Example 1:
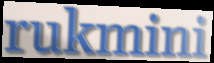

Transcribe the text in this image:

rukmini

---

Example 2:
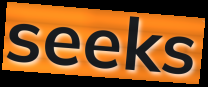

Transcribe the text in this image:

seeks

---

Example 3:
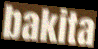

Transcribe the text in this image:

bakita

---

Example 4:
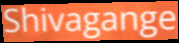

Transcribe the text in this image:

Shivagange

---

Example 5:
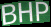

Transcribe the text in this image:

BHP